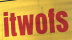
itwofs